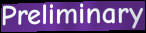
Preliminary